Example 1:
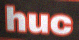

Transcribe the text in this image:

huc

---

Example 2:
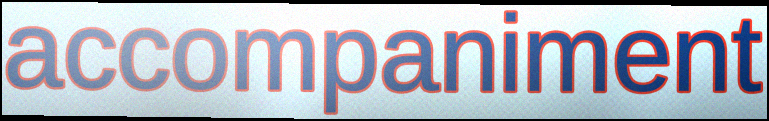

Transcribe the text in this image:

accompaniment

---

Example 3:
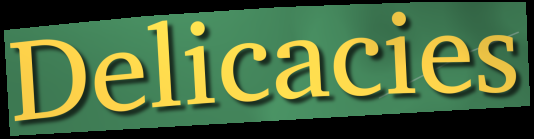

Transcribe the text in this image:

Delicacies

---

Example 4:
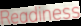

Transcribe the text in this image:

Readiness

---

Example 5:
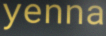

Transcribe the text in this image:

yenna